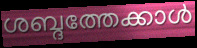
ശബ്ദത്തേക്കാൾ